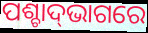
ପଶ୍ଚାଦ୍‍ଭାଗରେ